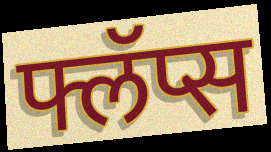
फ्लॅप्स